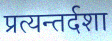
प्रत्यन्तर्दशा